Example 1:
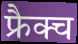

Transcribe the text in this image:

फ्रैक्च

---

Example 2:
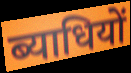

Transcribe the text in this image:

ब्याधियों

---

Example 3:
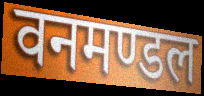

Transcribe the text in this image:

वनमण्डल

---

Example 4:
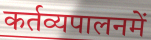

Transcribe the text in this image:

कर्तव्यपालनमें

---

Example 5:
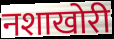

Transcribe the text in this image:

नशाखोरी